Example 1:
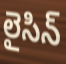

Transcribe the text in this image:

లైసిన్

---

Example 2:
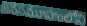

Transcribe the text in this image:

జనసమూహంలోని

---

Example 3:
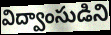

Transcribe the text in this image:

విద్వాంసుడిని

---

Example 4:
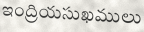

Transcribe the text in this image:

ఇంద్రియసుఖములు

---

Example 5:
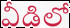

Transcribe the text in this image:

వీడిలో